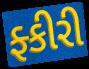
ફ્કીરી